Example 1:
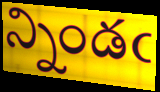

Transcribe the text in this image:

న్నిండఁ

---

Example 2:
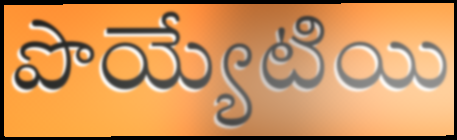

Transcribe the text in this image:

పొయ్యేటియి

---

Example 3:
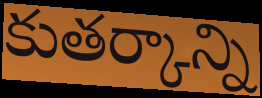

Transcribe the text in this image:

కుతర్కాన్ని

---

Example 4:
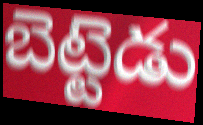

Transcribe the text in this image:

బెట్టెడు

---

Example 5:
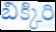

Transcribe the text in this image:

బిక్కిరి